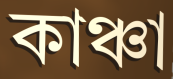
কাঞ্চা